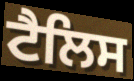
ਟੈਲਿਸ